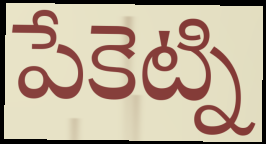
పేకెట్ని